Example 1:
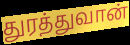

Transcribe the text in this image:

துரத்துவான்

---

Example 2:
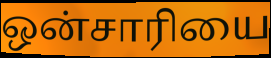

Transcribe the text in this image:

ஒன்சாரியை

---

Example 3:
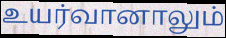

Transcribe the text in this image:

உயர்வானாலும்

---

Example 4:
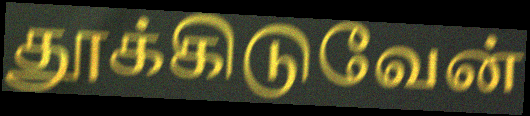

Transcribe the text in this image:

தூக்கிடுவேன்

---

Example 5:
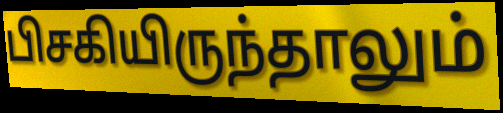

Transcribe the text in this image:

பிசகியிருந்தாலும்